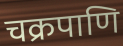
चक्रपाणि